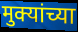
मुक्यांच्या